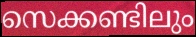
സെക്കണ്ടിലും